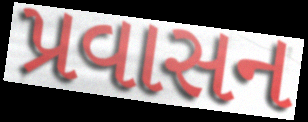
પ્રવાસન